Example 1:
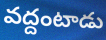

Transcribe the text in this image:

వద్దంటాడు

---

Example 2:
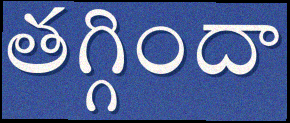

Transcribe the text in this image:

తగ్గిందా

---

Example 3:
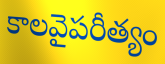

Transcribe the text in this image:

కాలవైపరీత్యం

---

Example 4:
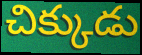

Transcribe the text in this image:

చిక్కుడు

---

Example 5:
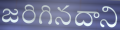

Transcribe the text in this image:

జరిగినదాని